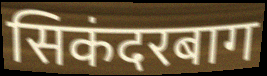
सिकंदरबाग